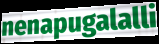
nenapugalalli